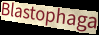
Blastophaga